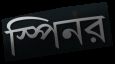
স্পিনর